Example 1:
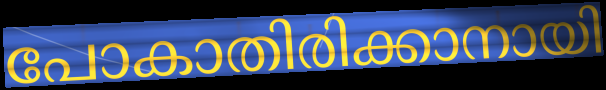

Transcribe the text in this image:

പോകാതിരിക്കാനായി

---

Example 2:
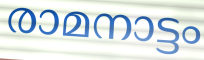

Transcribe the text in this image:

രാമനാട്ടം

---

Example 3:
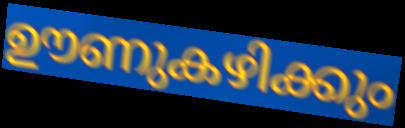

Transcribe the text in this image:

ഊണുകഴിക്കും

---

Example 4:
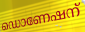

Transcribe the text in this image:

ഡൊണേഷന്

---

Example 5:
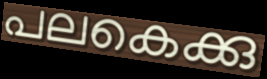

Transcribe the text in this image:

പലകെക്കു